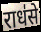
राध॑से